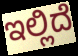
ಇಲ್ಲಿದೆ